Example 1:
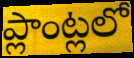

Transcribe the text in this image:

ప్లాంట్లలో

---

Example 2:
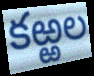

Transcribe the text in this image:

కఱ్ఱల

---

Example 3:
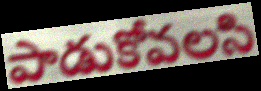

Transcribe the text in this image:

పాడుకోవలసి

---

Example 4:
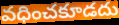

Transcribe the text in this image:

వధించకూడదు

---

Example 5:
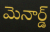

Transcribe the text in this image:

మెనార్డ్